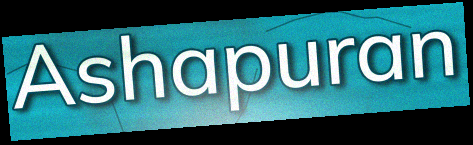
Ashapuran